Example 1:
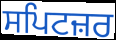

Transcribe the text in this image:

ਸਪਿਟਜ਼ਰ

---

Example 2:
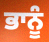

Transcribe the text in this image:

ਭਾਨੂੰ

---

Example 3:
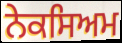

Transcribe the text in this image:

ਨੇਕਸਿਅਮ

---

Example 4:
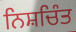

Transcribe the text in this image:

ਨਿਸ਼ਚਿੰਤ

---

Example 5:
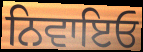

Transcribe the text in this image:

ਨਿਵਾਇਓ